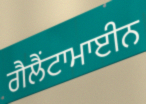
ਗੈਲੈਂਟਾਮਾਈਨ